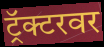
ट्रॅक्टरवर